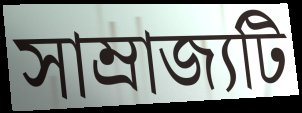
সাম্রাজ্যটি